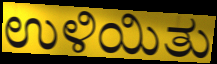
ಉಳಿಯಿತು